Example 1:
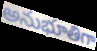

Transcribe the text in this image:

అనుభూతిగా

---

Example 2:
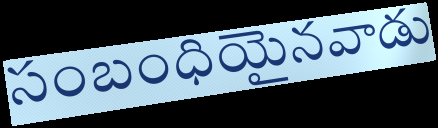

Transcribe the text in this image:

సంబంధియైనవాడు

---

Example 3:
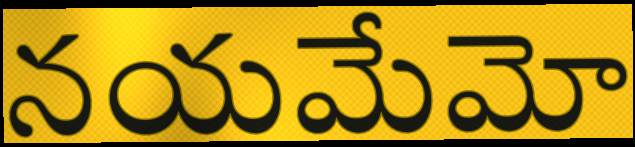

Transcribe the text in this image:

నయమేమో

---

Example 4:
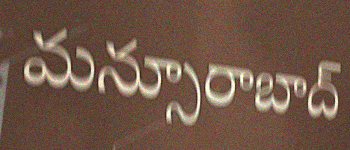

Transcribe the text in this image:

మన్సూరాబాద్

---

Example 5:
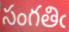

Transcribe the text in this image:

సంగతిఁ